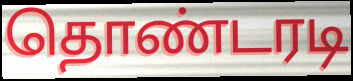
தொண்டரடி